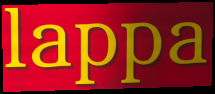
lappa